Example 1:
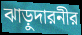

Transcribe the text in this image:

ঝাড়ুদারনীর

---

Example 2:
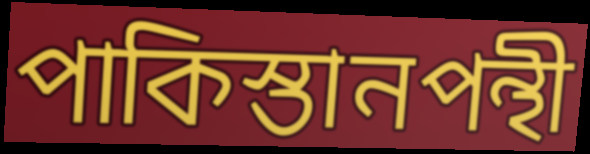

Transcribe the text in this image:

পাকিস্তানপন্থী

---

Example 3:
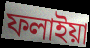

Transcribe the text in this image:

ফলাইয়া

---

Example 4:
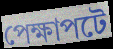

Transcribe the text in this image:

পেক্ষাপটে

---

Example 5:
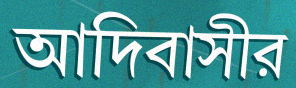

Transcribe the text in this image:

আদিবাসীর